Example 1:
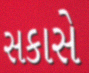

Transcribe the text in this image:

સકાસે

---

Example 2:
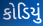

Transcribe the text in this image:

કોડિયું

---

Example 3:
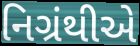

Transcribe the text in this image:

નિગ્રંથીએ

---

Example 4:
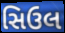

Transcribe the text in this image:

સિઉલ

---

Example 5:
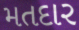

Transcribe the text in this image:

મતદાર